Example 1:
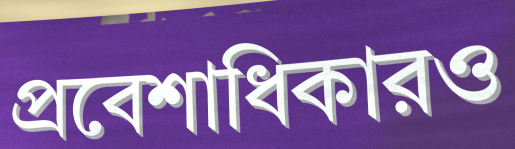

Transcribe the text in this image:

প্রবেশাধিকারও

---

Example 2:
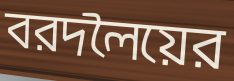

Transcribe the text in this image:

বরদলৈয়ের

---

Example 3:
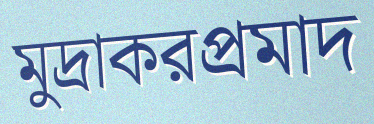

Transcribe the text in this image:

মুদ্রাকরপ্রমাদ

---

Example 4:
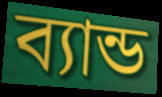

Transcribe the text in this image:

ব্যান্ড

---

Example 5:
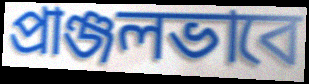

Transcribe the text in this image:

প্রাঞ্জলভাবে